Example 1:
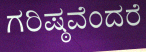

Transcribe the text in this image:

ಗರಿಷ್ಠವೆಂದರೆ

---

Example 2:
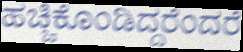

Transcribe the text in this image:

ಹಚ್ಚಿಕೊಂಡಿದ್ದರೆಂದರೆ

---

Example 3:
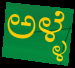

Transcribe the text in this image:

ಅಳ್ಳೆ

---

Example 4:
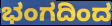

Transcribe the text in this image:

ಭಂಗದಿಂದ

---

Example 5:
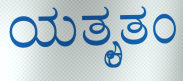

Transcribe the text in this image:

ಯತ್ಕೃತಂ